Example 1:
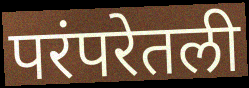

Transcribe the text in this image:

परंपरेतली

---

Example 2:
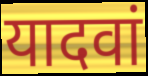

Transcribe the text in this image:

यादवां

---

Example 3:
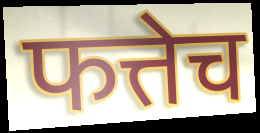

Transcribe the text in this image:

फत्तेच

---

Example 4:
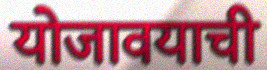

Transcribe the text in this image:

योजावयाची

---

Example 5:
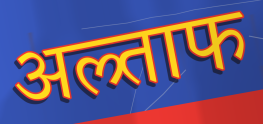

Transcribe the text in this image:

अल्ताफ